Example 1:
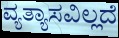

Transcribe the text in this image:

ವ್ಯತ್ಯಾಸವಿಲ್ಲದೆ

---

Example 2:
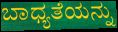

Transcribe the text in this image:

ಬಾಧ್ಯತೆಯನ್ನು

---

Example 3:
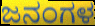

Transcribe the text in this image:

ಜನಂಗಳ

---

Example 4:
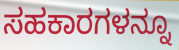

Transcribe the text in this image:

ಸಹಕಾರಗಳನ್ನೂ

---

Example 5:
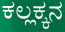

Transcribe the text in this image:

ಕಲ್ಲಕ್ಕನ